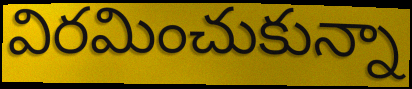
విరమించుకున్నా